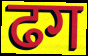
ढग